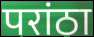
परांठा